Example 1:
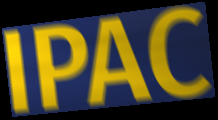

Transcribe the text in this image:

IPAC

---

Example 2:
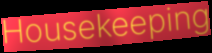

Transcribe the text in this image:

Housekeeping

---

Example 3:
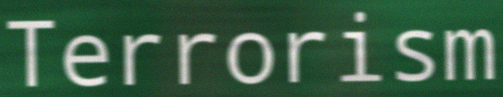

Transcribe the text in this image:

Terrorism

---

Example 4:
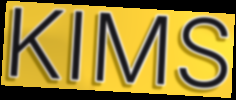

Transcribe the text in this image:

KIMS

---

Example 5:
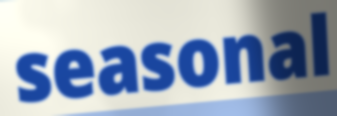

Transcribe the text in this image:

seasonal